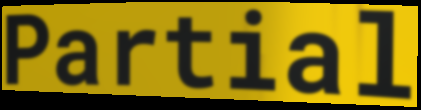
Partial